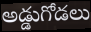
అడ్డుగోడలు